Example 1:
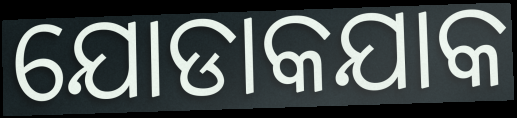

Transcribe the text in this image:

ଯୋଡାକଯାକ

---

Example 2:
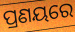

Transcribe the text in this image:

ପ୍ରଣୟରେ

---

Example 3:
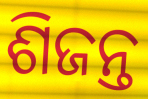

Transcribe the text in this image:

ଶିଜନ୍ତ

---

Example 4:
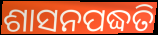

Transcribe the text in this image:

ଶାସନପଦ୍ଧତି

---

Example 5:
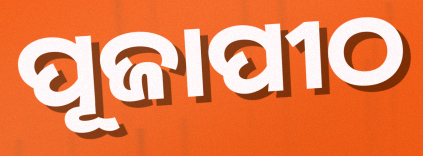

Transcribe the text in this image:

ପୂଜାପୀଠ